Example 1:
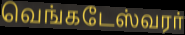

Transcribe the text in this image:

வெங்கடேஸ்வரர்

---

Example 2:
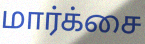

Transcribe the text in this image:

மார்க்சை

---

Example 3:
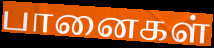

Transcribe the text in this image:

பானைகள்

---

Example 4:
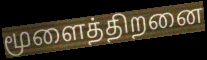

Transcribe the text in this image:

மூளைத்திறனை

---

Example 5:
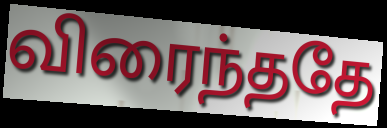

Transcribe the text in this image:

விரைந்ததே